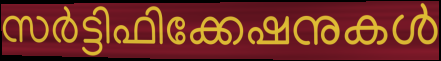
സർട്ടിഫിക്കേഷനുകൾ